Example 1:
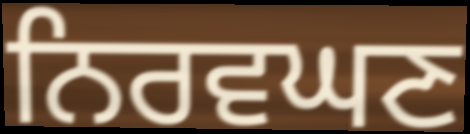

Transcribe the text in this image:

ਨਿਰਵਘਣ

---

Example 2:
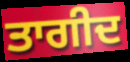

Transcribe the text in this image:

ਤਾਗੀਦ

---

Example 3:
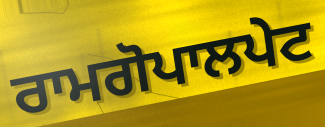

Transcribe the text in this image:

ਰਾਮਗੋਪਾਲਪੇਟ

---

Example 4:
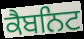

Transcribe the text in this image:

ਕੈਬਨਿਟ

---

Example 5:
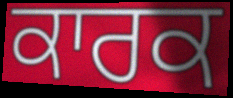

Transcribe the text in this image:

ਕਾਰਕ